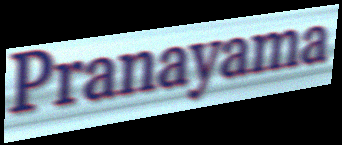
Pranayama